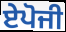
ਏਪੋਜੀ